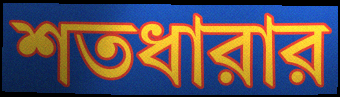
শতধারার